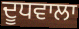
ਦੂਧਵਾਲਾ